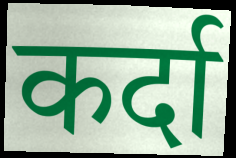
कर्दा